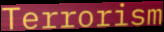
Terrorism